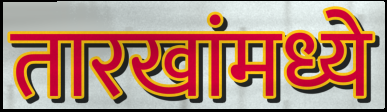
तारखांमध्ये